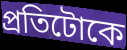
প্ৰতিটোকে